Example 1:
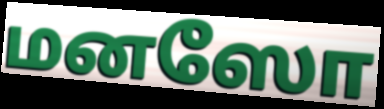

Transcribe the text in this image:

மனஸோ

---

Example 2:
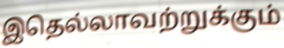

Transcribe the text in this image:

இதெல்லாவற்றுக்கும்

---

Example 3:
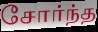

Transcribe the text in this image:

சோர்ந்த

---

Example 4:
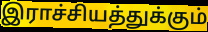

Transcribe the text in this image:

இராச்சியத்துக்கும்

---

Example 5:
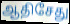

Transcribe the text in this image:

ஆதிசேது